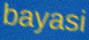
bayasi